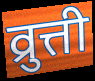
व्रुत्ती